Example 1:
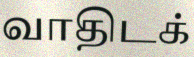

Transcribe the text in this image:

வாதிடக்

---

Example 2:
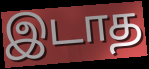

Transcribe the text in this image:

இடாத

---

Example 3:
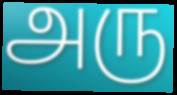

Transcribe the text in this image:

அரு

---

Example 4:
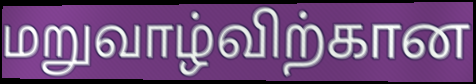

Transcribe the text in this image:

மறுவாழ்விற்கான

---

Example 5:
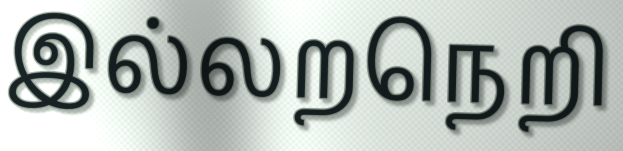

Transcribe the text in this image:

இல்லறநெறி